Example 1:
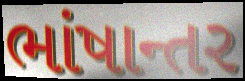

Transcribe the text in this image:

ભાંષાન્તર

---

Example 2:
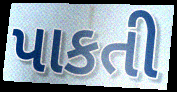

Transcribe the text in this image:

પાકતી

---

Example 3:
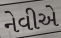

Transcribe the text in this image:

નેવીએ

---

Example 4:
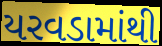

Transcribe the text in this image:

યરવડામાંથી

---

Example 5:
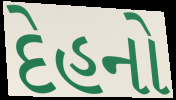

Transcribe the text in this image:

દેહનો